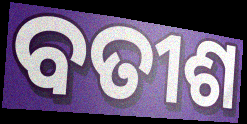
ବତୀଶ